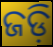
ଜଡ଼ି